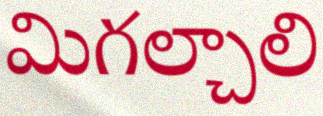
మిగల్చాలి